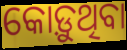
କୋଡ଼ୁଥିବା